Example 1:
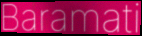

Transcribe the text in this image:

Baramati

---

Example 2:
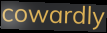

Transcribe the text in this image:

cowardly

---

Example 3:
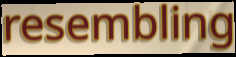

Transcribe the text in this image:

resembling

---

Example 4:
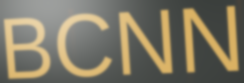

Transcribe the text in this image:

BCNN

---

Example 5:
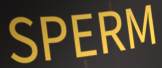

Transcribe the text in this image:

SPERM